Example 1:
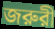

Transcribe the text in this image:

জরুরী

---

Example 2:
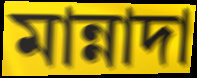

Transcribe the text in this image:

মান্নাদা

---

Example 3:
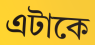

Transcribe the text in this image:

এটাকে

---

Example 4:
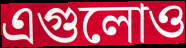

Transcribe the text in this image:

এগুলোও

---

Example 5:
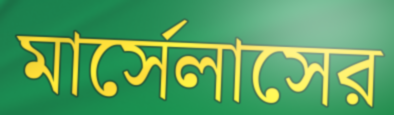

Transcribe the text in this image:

মার্সেলাসের